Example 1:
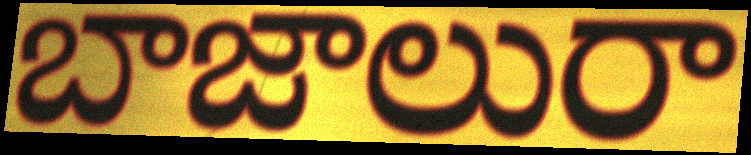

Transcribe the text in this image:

బాజాలురా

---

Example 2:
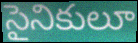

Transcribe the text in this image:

సైనికులూ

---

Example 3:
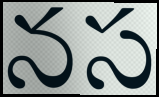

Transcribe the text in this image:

నస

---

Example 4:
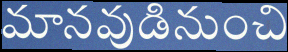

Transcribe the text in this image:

మానవుడినుంచి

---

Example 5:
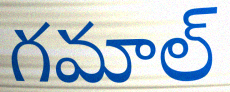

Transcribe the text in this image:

గమాల్